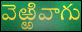
వెఱ్ఱివాగు